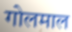
गोलमाल